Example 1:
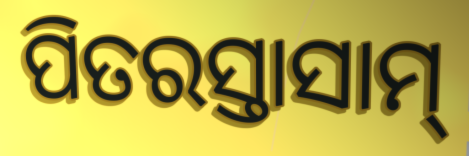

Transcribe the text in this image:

ପିତରସ୍ତାସାମ୍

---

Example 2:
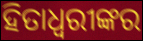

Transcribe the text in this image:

ହିତାଧ୍ଵରୀଙ୍କର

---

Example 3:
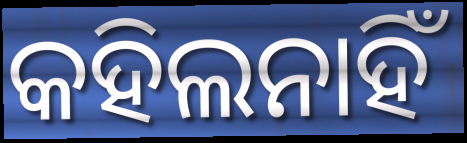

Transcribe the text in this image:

କହିଲନାହିଁ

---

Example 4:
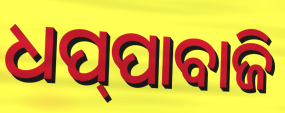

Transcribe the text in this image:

ଧପ୍‌ପାବାଜି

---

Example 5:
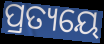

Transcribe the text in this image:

ପ୍ରତ୍ୟୟେ